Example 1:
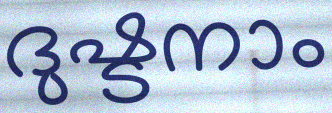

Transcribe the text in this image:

ദുഷ്ടനാം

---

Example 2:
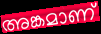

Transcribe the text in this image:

അങ്കമാണ്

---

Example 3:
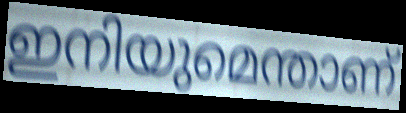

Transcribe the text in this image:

ഇനിയുമെന്താണ്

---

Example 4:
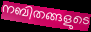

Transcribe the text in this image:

നബിതങ്ങളുടെ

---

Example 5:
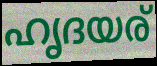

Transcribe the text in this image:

ഹൃദയര്